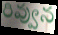
రివ్వున